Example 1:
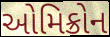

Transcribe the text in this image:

ઓમિક્રોન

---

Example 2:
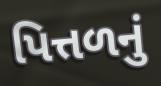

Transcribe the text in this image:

પિત્તળનું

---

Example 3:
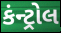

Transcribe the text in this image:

કંન્ટ્રોલ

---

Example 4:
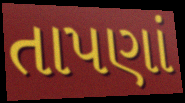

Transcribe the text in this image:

તાપણાં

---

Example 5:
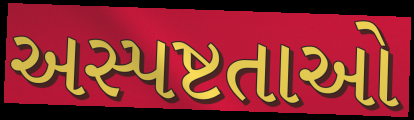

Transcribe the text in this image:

અસ્પષ્ટતાઓ